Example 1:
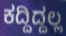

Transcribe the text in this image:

ಕದ್ದಿದ್ದಲ್ಲ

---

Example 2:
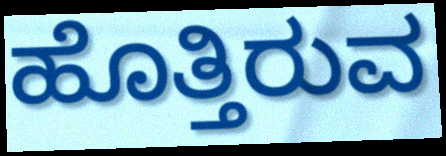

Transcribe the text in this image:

ಹೊತ್ತಿರುವ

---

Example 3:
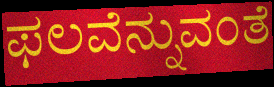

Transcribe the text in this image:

ಫಲವೆನ್ನುವಂತೆ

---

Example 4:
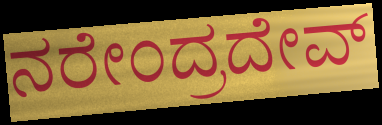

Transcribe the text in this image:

ನರೇಂದ್ರದೇವ್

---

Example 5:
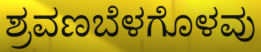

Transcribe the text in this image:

ಶ್ರವಣಬೆಳಗೊಳವು